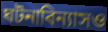
ঘটনাবিন্যাসও